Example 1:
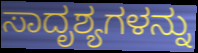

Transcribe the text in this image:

ಸಾದೃಶ್ಯಗಳನ್ನು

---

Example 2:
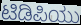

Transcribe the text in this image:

ಟಿಡಿಪಿಯು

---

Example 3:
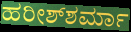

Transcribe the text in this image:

ಹರೀಶ್‌ಶರ್ಮಾ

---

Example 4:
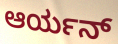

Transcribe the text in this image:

ಆರ್ಯನ್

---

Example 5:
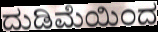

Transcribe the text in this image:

ದುಡಿಮೆಯಿಂದ